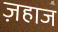
ज़हाज